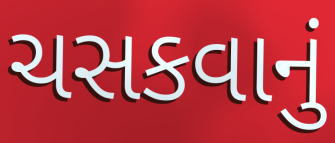
ચસકવાનું